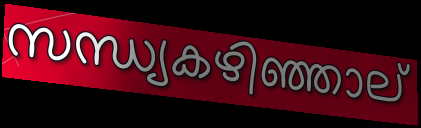
സന്ധ്യകഴിഞ്ഞാല്